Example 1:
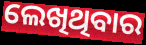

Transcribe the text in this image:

ଲେଖିଥିବାର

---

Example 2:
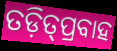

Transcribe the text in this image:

ତଡ଼ିତ୍‍ପ୍ରବାହ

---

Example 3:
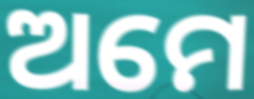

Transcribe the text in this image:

ଅମେ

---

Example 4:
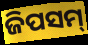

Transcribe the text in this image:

ଜିପସମ୍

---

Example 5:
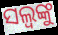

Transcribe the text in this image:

ସଲ୍ୱଙ୍କୁ